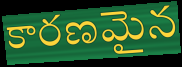
కారణమైన